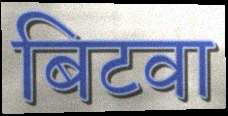
बिटवा